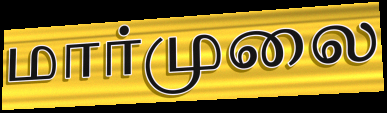
மார்முலை